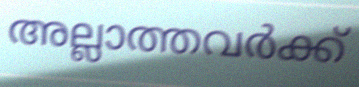
അല്ലാത്തവർക്ക്